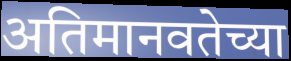
अतिमानवतेच्या